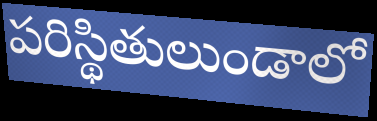
పరిస్థితులుండాలో